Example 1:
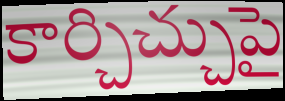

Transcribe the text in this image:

కార్చిచ్చుపై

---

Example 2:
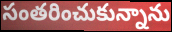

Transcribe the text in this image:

సంతరించుకున్నాను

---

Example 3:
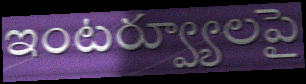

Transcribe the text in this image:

ఇంటర్వ్యూలపై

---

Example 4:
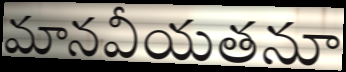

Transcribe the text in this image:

మానవీయతనూ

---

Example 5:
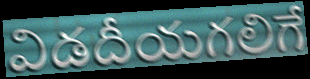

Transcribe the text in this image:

విడదీయగలిగే